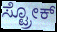
ಸ್ಟ್ರೋಕ್